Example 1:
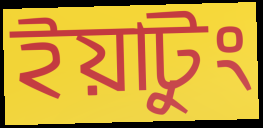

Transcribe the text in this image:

ইয়াটুং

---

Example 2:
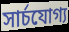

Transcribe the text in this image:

সার্চযোগ্য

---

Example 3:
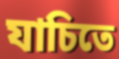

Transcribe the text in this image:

যাচিতে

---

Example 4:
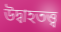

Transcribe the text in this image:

উদ্বাহতত্ত্ব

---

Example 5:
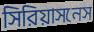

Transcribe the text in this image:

সিরিয়াসনেস